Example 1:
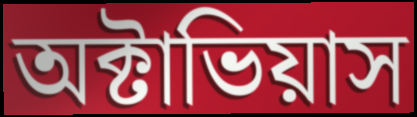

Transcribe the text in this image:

অক্টাভিয়াস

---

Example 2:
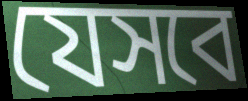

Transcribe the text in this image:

যেসবে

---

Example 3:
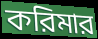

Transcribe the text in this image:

করিমার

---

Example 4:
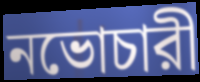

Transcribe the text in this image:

নভোচারী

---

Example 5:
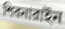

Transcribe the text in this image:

শিবনারাইন